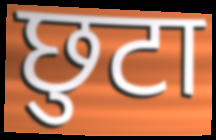
छुटा